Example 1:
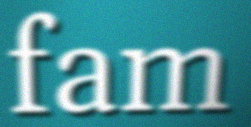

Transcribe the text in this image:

fam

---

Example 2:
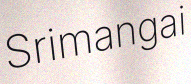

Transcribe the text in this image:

Srimangai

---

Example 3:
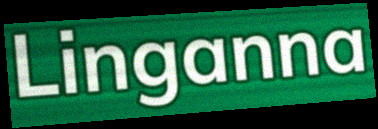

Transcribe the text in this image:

Linganna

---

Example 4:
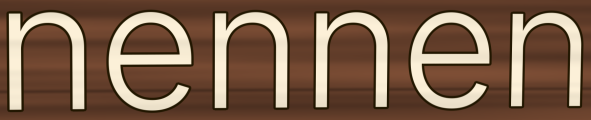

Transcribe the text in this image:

nennen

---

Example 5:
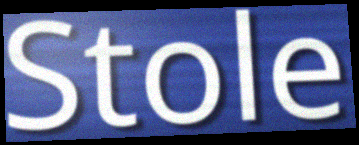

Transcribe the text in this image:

Stole